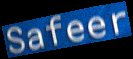
Safeer